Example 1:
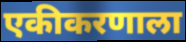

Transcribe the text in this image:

एकीकरणाला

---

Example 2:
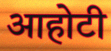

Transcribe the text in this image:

आहोटी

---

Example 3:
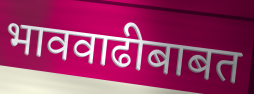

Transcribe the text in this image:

भाववाढीबाबत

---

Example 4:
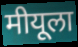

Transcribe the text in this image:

मीयूला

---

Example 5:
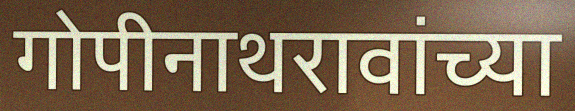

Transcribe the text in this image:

गोपीनाथरावांच्या